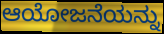
ಆಯೋಜನೆಯನ್ನು